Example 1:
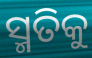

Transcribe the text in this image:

ସ୍ମତିକୁ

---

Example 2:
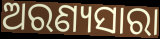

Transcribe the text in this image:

ଅରଣ୍ୟସାରା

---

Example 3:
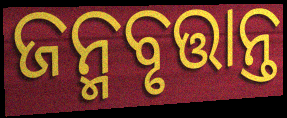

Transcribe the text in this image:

ଜନ୍ମବୃତ୍ତାନ୍ତ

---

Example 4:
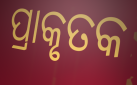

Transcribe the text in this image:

ପ୍ରାକୃତକ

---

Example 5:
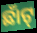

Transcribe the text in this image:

ଛାଁଟ୍